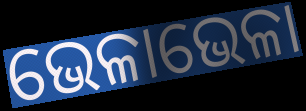
ଭେଳାଭେଳା